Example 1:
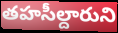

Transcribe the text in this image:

తహసీల్దారుని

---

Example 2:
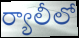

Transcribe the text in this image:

ర్యాలీలో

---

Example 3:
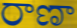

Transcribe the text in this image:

రాణా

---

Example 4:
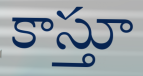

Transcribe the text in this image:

కాస్తూ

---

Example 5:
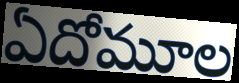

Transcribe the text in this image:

ఏదోమూల